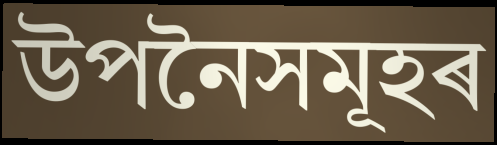
উপনৈসমূহৰ